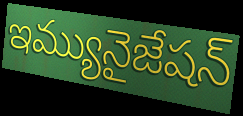
ఇమ్యునైజేషన్